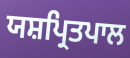
ਯਸ਼ਪ੍ਰਿਤਪਾਲ